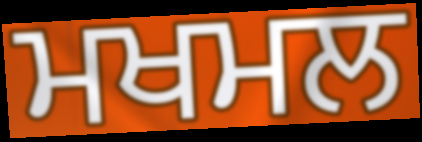
ਮਖਮਲ